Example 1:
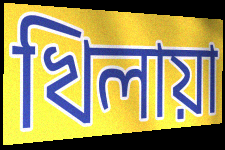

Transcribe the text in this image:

খিলায়া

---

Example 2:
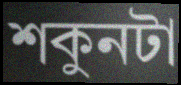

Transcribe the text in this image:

শকুনটা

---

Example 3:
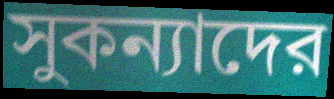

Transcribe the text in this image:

সুকন্যাদের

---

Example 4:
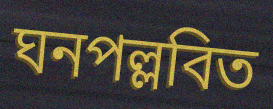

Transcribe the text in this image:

ঘনপল্লবিত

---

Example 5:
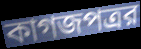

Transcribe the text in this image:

কাগজপত্রর